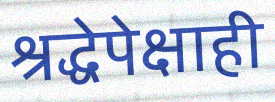
श्रद्धेपेक्षाही